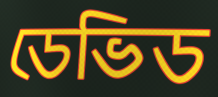
ডেভিড